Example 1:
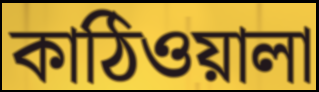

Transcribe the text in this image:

কাঠিওয়ালা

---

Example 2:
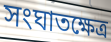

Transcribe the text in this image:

সংঘাতক্ষেত্র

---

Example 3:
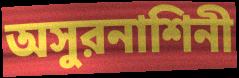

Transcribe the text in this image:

অসুরনাশিনী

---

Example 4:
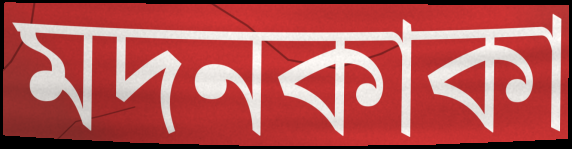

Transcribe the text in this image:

মদনকাকা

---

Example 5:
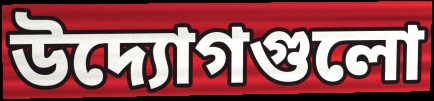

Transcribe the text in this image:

উদ্যোগগুলো